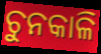
ଚୁନକାଳି